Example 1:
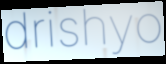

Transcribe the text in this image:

drishyo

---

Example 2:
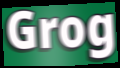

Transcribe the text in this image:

Grog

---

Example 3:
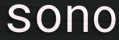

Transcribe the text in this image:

sono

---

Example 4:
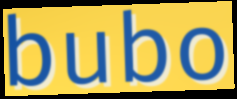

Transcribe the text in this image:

bubo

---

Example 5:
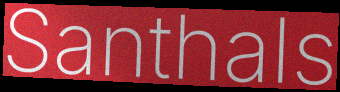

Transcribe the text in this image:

Santhals